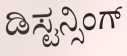
ಡಿಸ್ಟನ್ಸಿಂಗ್